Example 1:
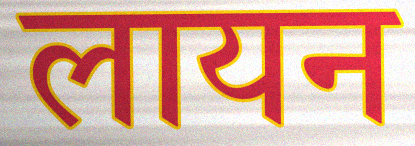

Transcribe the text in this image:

लायन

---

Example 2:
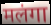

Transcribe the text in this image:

मलंगा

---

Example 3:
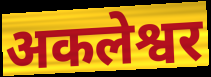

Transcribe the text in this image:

अकलेश्वर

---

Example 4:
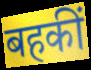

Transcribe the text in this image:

बहकीं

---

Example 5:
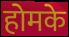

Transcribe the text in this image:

होमके